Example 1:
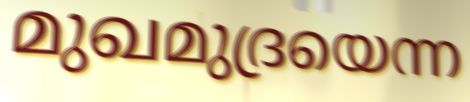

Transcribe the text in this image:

മുഖമുദ്രയെന്ന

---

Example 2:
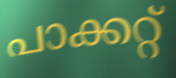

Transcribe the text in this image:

പാക്കറ്റ്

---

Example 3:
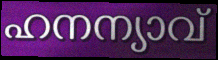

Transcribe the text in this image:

ഹനന്യാവ്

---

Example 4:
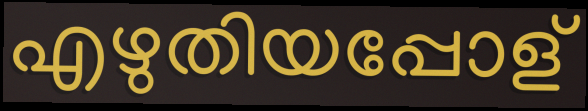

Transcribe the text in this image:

എഴുതിയപ്പോള്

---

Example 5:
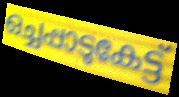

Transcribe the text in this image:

ഒച്ചപ്പാടുകേട്ട്